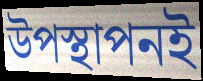
উপস্থাপনই